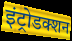
इंट्रोडक्शन